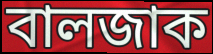
বালজাক